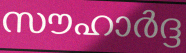
സൗഹാർദ്ദ